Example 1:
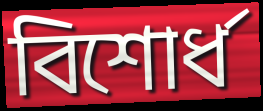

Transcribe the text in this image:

বিশোর্ধ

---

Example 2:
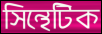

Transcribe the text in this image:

সিন্থেটিক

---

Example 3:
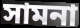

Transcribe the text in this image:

সামনা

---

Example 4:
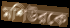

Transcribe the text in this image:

মশিউরকে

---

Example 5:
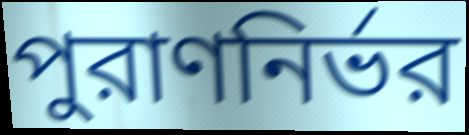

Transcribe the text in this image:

পুরাণনির্ভর